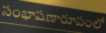
సంభాషణారూపంలో